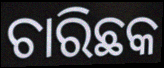
ଚାରିଛକ